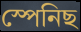
স্পেনিছ